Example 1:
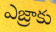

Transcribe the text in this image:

ఎజ్రాకు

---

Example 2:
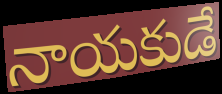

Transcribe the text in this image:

నాయకుడే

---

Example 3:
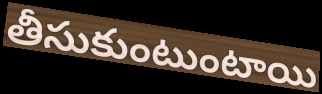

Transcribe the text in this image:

తీసుకుంటుంటాయి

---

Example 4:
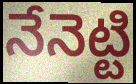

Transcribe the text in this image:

నేనెట్టి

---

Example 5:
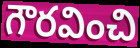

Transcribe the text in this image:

గౌరవించి